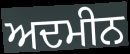
ਅਦਮੀਨ